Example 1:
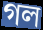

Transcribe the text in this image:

গল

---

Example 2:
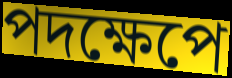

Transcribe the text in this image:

পদক্ষেপে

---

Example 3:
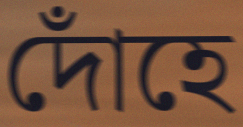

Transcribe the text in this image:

দোঁহে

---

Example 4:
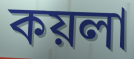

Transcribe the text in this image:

কয়লা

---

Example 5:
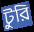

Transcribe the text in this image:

টুরি